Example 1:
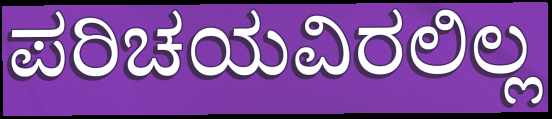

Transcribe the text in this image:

ಪರಿಚಯವಿರಲಿಲ್ಲ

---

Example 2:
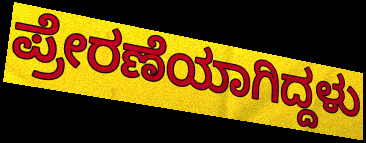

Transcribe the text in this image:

ಪ್ರೇರಣೆಯಾಗಿದ್ದಳು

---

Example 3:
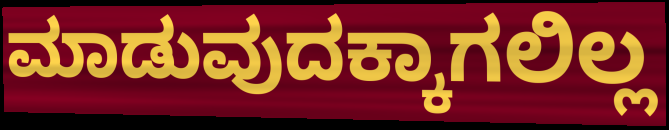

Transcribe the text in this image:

ಮಾಡುವುದಕ್ಕಾಗಲಿಲ್ಲ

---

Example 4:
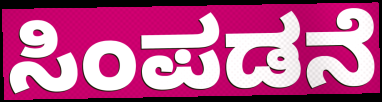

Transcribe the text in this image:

ಸಿಂಪಡನೆ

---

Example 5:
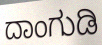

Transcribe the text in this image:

ದಾಂಗುಡಿ